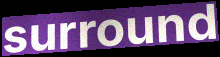
surround